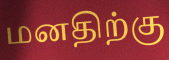
மனதிற்கு